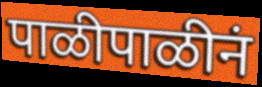
पाळीपाळीनं